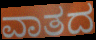
ವಾತದ